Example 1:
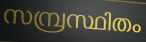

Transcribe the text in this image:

സമ്പ്രസ്ഥിതം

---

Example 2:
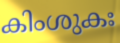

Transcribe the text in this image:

കിംശുകഃ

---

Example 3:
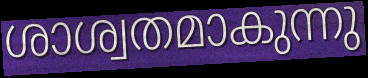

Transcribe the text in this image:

ശാശ്വതമാകുന്നു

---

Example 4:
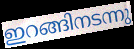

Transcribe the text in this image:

ഇറങ്ങിനടന്നു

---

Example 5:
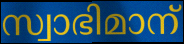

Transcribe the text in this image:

സ്വാഭിമാന്